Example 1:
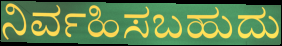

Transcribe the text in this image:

ನಿರ್ವಹಿಸಬಹುದು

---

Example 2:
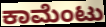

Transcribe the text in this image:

ಕಾಮೆಂಟು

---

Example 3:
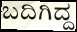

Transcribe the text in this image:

ಬದಿಗಿದ್ದ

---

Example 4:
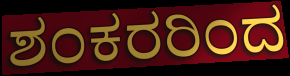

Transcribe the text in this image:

ಶಂಕರರಿಂದ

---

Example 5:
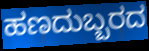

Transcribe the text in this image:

ಹಣದುಬ್ಬರದ